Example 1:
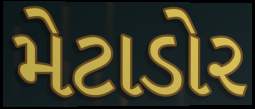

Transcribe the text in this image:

મેટાડોર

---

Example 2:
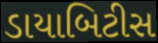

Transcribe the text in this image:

ડાયાબિટીસ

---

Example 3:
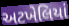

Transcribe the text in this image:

અટખેલિયાં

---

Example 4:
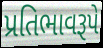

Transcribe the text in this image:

પ્રતિભાવરૂપે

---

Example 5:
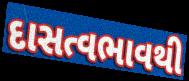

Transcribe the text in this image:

દાસત્વભાવથી